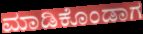
ಮಾಡಿಕೊಂಡಾಗ